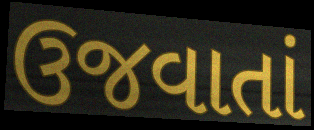
ઉજવાતાં